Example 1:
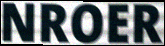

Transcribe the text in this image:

NROER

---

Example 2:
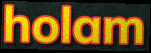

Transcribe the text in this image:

holam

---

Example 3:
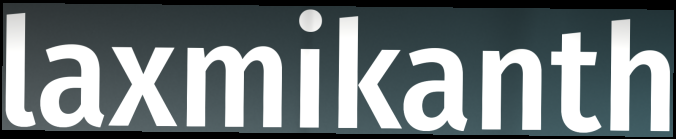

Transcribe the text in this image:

laxmikanth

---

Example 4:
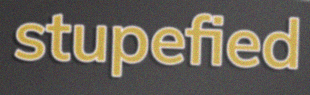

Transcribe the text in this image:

stupefied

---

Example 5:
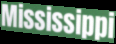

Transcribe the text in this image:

Mississippi